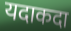
यदाकदा